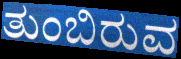
ತುಂಬಿರುವ